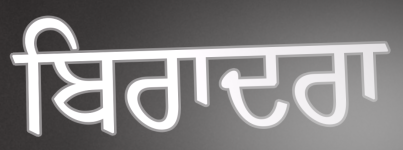
ਬਿਰਾਦਰਾ